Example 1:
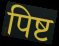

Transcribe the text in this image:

पिष्ट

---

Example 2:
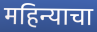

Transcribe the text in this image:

महिन्याचा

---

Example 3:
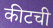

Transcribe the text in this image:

कीटची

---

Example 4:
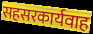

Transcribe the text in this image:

सहसरकार्यवाह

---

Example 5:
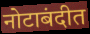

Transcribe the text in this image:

नोटाबंदीत